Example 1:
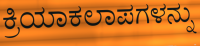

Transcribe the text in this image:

ಕ್ರಿಯಾಕಲಾಪಗಳನ್ನು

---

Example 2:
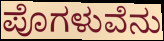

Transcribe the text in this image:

ಪೊಗಳುವೆನು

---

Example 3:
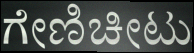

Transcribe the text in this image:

ಗೇಣಿಚೀಟು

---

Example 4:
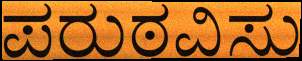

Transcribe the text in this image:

ಪರುಠವಿಸು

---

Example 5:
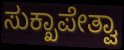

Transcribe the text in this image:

ಸುಕ್ಖಾಪೇತ್ವಾ